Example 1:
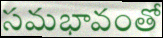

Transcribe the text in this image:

సమభావంతో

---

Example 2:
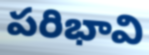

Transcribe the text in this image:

పరిభావి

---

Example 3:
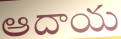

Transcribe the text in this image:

ఆదాయ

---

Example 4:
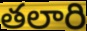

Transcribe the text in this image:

తలారి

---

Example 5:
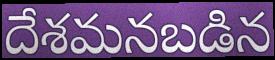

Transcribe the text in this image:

దేశమనబడిన